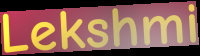
Lekshmi